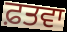
ਫ਼ਤਵਾ